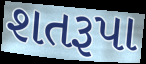
શતરૂપા